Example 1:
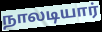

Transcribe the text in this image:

நாலடியார்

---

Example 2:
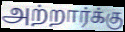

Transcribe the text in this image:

அற்றார்க்கு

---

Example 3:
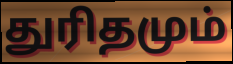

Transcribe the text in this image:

துரிதமும்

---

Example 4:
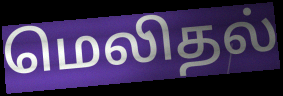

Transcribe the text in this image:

மெலிதல்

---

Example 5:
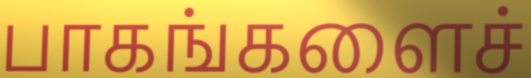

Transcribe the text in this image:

பாகங்களைச்